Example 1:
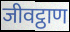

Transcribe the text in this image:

जीवट्ठाण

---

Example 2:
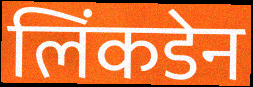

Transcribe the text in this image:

लिंकडेन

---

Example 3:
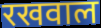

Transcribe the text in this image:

रखवाल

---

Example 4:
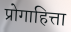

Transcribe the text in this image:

प्रोगाहित्ता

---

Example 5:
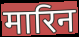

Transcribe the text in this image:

मारिन